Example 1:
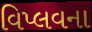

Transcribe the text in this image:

વિપ્લવના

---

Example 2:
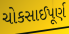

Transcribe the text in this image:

ચોકસાઈપૂર્ણ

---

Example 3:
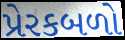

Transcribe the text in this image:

પ્રેરકબળો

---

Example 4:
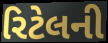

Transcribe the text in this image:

રિટેલની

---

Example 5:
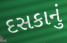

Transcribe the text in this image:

દસકાનું